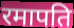
रमापति